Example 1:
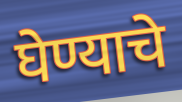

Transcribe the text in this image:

घेण्याचे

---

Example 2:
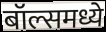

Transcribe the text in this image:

बॉल्समध्ये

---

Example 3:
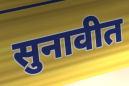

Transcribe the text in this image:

सुनावीत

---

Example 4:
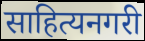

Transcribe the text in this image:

साहित्यनगरी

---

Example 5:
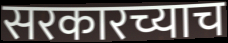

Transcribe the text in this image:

सरकारच्याच